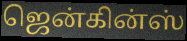
ஜென்கின்ஸ்